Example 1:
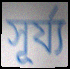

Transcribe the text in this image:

সূৰ্য্য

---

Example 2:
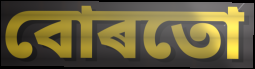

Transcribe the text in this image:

বোৰতো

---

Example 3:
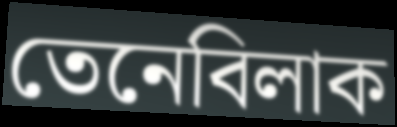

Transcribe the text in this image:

তেনেবিলাক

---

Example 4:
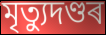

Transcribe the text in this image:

মৃত্যুদণ্ডৰ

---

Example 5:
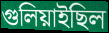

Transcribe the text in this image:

গুলিয়াইছিল